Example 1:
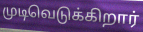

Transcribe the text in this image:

முடிவெடுக்கிறார்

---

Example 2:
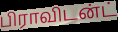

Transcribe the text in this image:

பிராவிடன்ட்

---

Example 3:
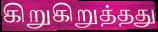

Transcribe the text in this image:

கிறுகிறுத்தது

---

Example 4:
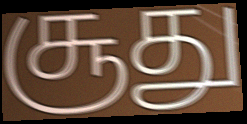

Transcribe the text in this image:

சூது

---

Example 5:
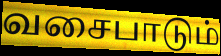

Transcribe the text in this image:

வசைபாடும்